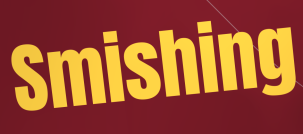
Smishing